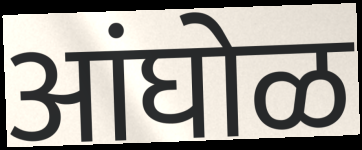
आंघोळ